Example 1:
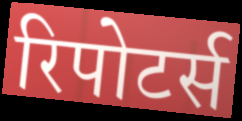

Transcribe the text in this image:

रिपोटर्स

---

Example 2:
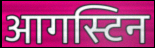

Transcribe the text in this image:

आगस्टिन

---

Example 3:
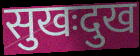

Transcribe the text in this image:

सुखःदुख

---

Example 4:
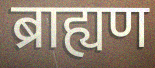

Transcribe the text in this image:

ब्राह्यण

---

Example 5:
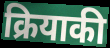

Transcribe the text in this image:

क्रियाकी